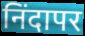
निंदापर